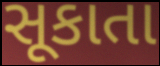
સૂકાતા